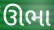
ઊભા